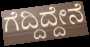
ಗೆದ್ದಿದ್ದೇನೆ